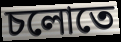
চলোতে